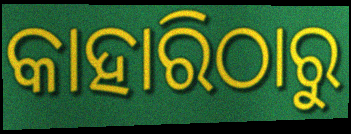
କାହାରିଠାରୁ